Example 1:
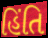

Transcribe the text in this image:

હિંતિ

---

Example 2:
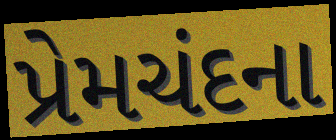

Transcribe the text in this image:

પ્રેમચંદના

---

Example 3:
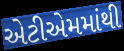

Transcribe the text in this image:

એટીએમમાંથી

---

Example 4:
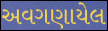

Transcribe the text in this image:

અવગણાયેલ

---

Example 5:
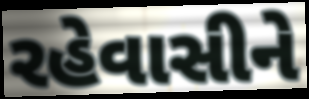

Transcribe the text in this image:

રહેવાસીને